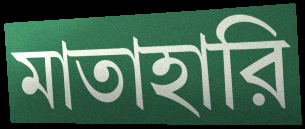
মাতাহারি